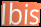
Ibis